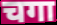
चगा